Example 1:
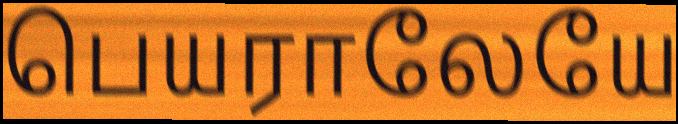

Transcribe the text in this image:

பெயராலேயே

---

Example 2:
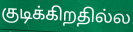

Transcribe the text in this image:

குடிக்கிறதில்ல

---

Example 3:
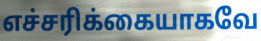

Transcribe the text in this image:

எச்சரிக்கையாகவே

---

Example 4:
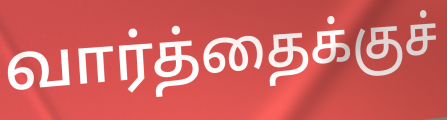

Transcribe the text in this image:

வார்த்தைக்குச்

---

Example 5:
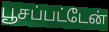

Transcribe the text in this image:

பூசப்பட்டேன்